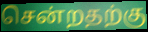
சென்றதற்கு